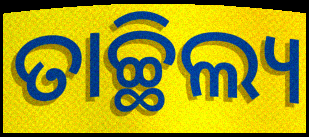
ତାଚ୍ଛିଲ୍ୟ